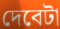
দেবেটা